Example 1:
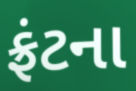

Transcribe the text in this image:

ફ્રંટના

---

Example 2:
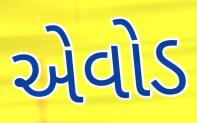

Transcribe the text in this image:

એવોડ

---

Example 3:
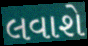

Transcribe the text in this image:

લવાશે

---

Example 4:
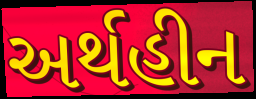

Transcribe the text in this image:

અર્થહીન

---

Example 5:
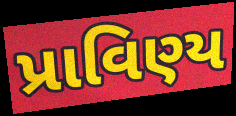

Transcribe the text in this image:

પ્રાવિણ્ય